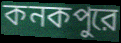
কনকপুরে